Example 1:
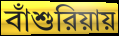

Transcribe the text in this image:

বাঁশুরিয়ায়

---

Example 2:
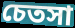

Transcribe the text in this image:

চেতসা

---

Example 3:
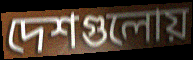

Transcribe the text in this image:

দেশগুলোয়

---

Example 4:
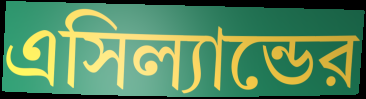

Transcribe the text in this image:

এসিল্যান্ডের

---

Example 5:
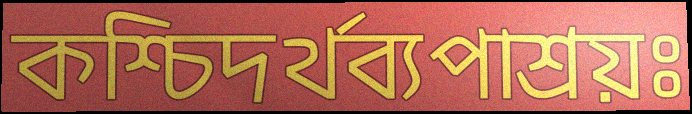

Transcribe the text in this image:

কশ্চিদর্থব্যপাশ্রয়ঃ